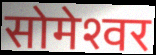
सोमेश्वर